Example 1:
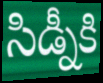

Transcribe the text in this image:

సిడ్నీకి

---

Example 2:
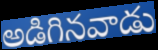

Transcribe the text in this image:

అడిగినవాడు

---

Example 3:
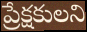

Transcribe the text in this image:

ప్రేక్షకులని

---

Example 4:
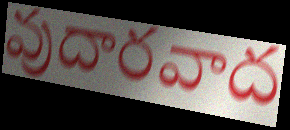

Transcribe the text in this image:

వుదారవాద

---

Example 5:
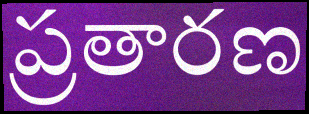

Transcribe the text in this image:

ప్రతారణ